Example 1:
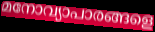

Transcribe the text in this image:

മനോവ്യാപാരങ്ങളെ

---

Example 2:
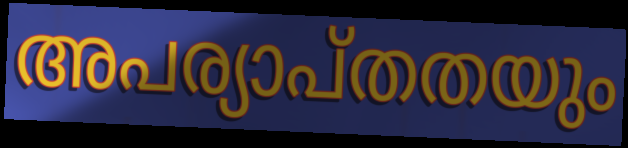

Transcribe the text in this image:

അപര്യാപ്തതയും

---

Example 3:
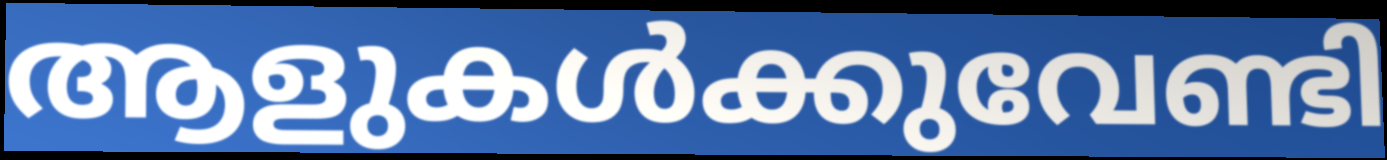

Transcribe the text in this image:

ആളുകൾക്കുവേണ്ടി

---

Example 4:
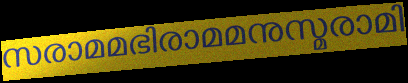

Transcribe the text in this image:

സരാമമഭിരാമമനുസ്മരാമി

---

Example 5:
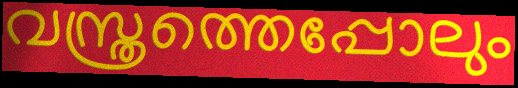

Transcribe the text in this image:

വസ്ത്രത്തെപ്പോലും